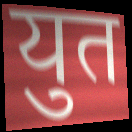
युत